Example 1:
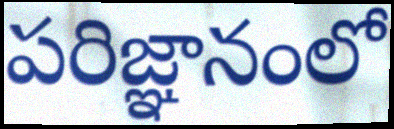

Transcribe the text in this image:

పరిజ్ఞానంలో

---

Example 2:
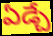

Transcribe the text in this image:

ఏడ్చే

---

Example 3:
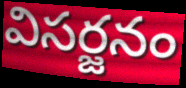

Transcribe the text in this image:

విసర్జనం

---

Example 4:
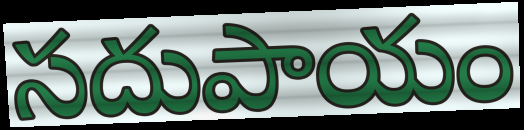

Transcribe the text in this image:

సదుపాయం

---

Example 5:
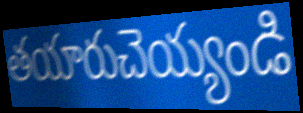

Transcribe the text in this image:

తయారుచెయ్యండి